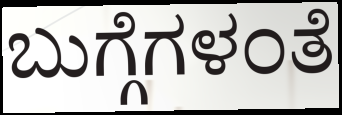
ಬುಗ್ಗೆಗಳಂತೆ